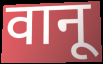
वानू